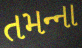
તમન્‍ના